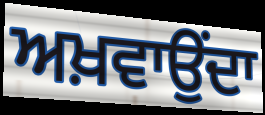
ਅਖ਼ਵਾਉਂਦਾ